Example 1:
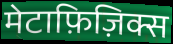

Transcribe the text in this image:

मेटाफ़िज़िक्स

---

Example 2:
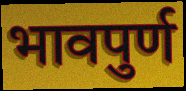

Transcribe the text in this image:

भावपुर्ण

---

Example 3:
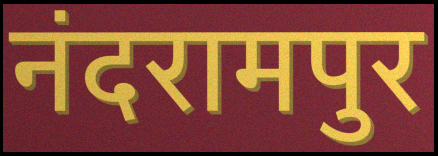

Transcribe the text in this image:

नंदरामपुर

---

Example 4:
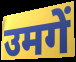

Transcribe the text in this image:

उमगें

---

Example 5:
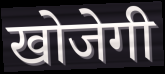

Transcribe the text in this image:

खोजेगी